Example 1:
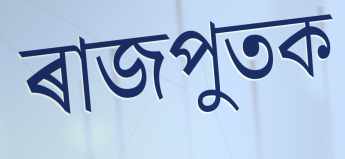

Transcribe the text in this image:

ৰাজপুতক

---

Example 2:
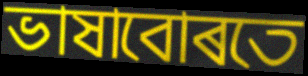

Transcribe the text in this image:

ভাষাবোৰতে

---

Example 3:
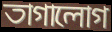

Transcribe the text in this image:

তাগালোগ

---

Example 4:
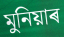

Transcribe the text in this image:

মুনিয়াৰ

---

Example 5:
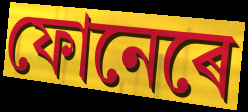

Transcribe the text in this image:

ফোনেৰে